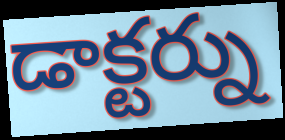
డాక్టర్ను